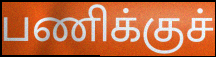
பணிக்குச்